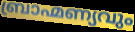
ബ്രാഹ്മണ്യവും